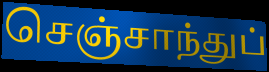
செஞ்சாந்துப்